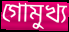
গোমুখ্য